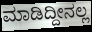
ಮಾಡಿದ್ದೀನಲ್ಲ